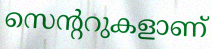
സെന്ററുകളാണ്